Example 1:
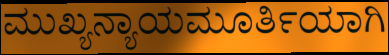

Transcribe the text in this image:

ಮುಖ್ಯನ್ಯಾಯಮೂರ್ತಿಯಾಗಿ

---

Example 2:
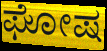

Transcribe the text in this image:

ಘೋಷ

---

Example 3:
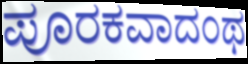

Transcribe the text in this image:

ಪೂರಕವಾದಂಥ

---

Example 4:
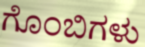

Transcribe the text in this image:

ಗೊಂಬಿಗಳು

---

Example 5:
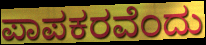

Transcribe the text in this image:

ಪಾಪಕರವೆಂದು